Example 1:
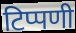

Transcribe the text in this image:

टिप्‍पणी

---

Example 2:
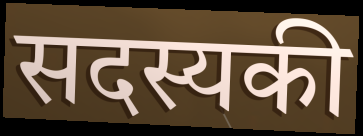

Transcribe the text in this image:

सदस्यकी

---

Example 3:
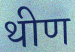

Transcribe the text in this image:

थीण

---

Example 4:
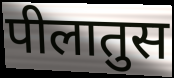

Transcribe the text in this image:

पीलातुस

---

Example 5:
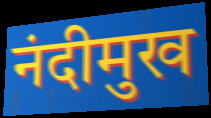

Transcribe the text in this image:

नंदीमुख